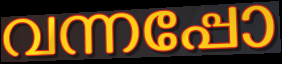
വന്നപ്പോ